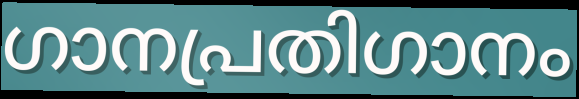
ഗാനപ്രതിഗാനം